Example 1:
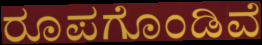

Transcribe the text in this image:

ರೂಪಗೊಂಡಿವೆ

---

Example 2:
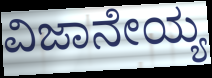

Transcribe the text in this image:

ವಿಜಾನೇಯ್ಯ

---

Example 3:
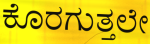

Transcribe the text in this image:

ಕೊರಗುತ್ತಲೇ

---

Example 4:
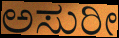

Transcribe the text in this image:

ಅಸುರೀ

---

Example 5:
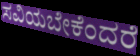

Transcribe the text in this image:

ಸವಿಯಬೇಕೆಂದರೆ